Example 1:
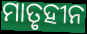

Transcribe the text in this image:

ମାତୃହୀନ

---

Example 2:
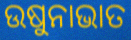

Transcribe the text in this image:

ଉଷୁନାଭାତ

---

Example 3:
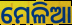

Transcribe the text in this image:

ମେଳିଆ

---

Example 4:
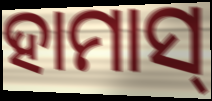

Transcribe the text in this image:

ହାମାସ୍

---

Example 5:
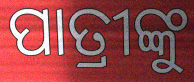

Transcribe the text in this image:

ପାତ୍ରୀଙ୍କୁ